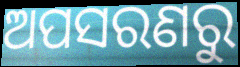
ଅପସରଣରୁ